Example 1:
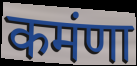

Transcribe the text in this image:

कमंणा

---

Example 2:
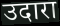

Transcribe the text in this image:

उदारा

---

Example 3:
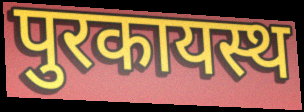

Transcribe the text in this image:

पुरकायस्थ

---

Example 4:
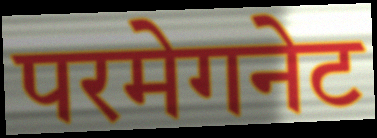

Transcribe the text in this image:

परमेगनेट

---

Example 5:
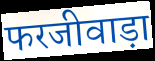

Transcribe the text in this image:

फरजीवाड़ा